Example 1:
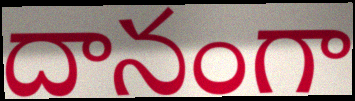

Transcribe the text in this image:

దానంగా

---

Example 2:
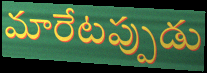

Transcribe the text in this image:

మారేటప్పుడు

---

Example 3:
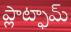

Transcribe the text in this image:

ప్లాట్ఫామ్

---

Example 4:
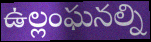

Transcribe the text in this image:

ఉల్లంఘనల్ని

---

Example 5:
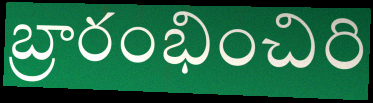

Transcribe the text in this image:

బ్రారంభించిరి